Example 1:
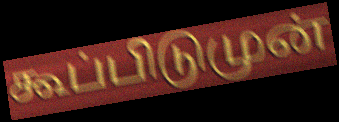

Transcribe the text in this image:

கூப்பிடுமுன்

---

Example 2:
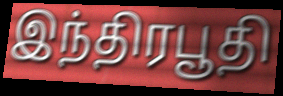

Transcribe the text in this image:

இந்திரபூதி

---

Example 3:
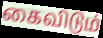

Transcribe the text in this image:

கைவிடும்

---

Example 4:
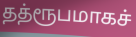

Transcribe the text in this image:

தத்ரூபமாகச்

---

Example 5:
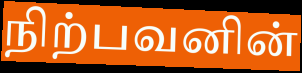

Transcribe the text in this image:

நிற்பவனின்